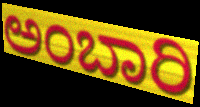
ಅಂಬಾರಿ